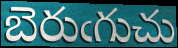
బెరుఁగుచు